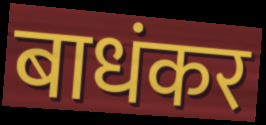
बाधंकर